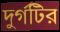
দুর্গটির